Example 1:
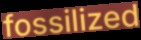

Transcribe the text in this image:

fossilized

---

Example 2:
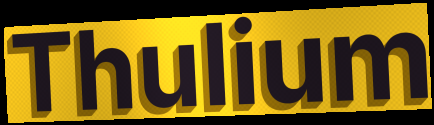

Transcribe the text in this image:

Thulium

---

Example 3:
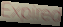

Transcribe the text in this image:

Expired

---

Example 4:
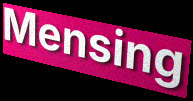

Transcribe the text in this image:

Mensing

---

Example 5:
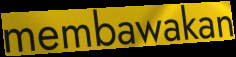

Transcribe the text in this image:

membawakan